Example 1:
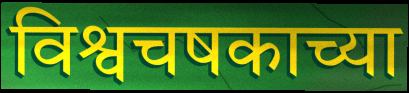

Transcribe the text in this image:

विश्वचषकाच्या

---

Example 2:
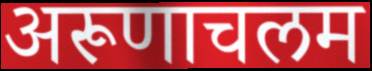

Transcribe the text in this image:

अरूणाचलम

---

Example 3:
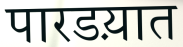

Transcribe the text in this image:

पारडय़ात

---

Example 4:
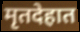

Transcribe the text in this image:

मृतदेहात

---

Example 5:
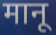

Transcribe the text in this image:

मानू